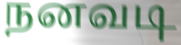
நனவடி